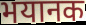
भयानक